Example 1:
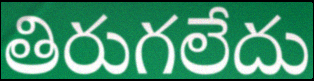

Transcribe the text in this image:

తిరుగలేదు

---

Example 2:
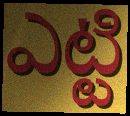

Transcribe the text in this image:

ఎట్టి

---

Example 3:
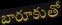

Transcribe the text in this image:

బారూకుతో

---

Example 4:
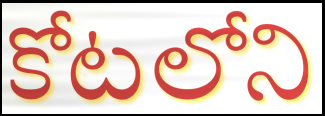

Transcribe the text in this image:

కోటలోని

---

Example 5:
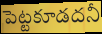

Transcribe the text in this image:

పెట్టకూడదనీ